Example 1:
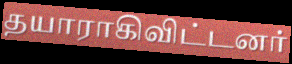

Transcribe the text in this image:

தயாராகிவிட்டனர்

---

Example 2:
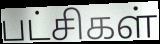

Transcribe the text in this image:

பட்சிகள்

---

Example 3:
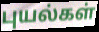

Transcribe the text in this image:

புயல்கள்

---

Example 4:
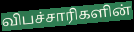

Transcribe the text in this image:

விபச்சாரிகளின்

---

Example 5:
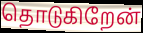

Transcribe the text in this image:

தொடுகிறேன்